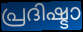
പ്രദിഷ്ടാ